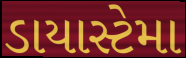
ડાયાસ્ટેમા